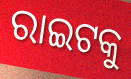
ରାଇଟକୁ